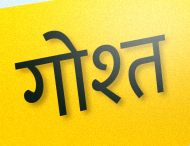
गोश्‍त